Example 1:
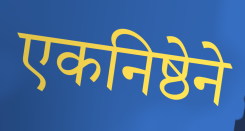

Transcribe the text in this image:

एकनिष्ठेने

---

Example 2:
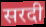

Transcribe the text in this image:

सरदी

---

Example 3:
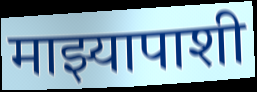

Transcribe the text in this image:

माझ्यापाशी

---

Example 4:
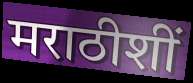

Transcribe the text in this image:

मराठीशीं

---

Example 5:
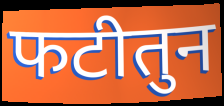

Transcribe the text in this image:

फटीतुन